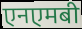
एनएमबी